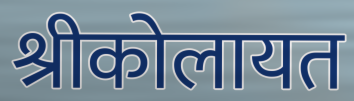
श्रीकोलायत